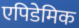
एपिडेमिक